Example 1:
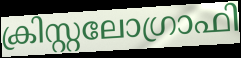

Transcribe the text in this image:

ക്രിസ്റ്റലോഗ്രാഫി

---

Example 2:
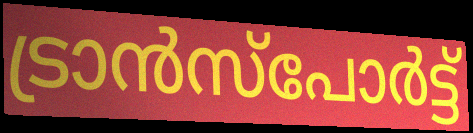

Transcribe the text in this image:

ട്രാൻസ്പോർട്ട്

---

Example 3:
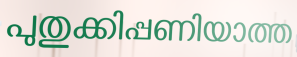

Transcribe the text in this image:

പുതുക്കിപ്പണിയാത്ത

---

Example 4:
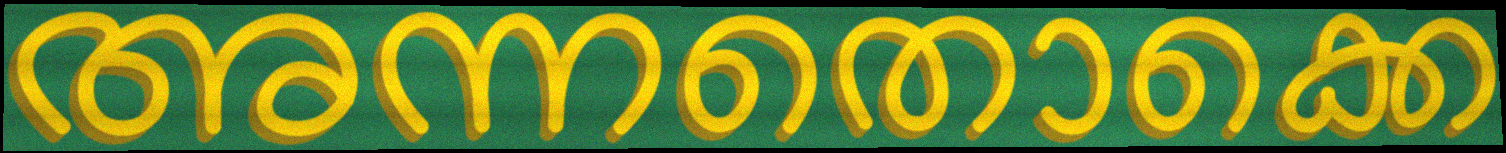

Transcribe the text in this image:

അന്നതൊക്കെ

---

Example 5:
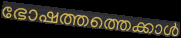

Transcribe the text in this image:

ഭോഷത്തത്തെക്കാൾ